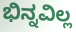
ಭಿನ್ನವಿಲ್ಲ